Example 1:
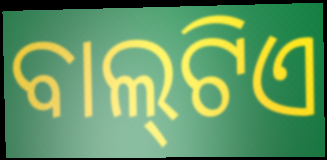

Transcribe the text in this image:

ବାଲ୍‍ଟିଏ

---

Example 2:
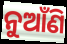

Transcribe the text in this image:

ନୁଆଁଣି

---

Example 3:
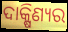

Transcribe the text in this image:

ଦାକ୍ଷିଣ୍ୟର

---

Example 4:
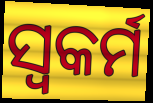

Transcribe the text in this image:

ସ୍ଵକର୍ମ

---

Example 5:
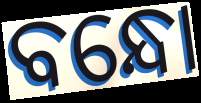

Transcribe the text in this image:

ବନ୍ଧୋ